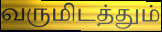
வருமிடத்தும்